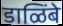
डाळिंबे